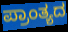
ಪ್ರಾಂತ್ಯದ